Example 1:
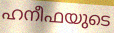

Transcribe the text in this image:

ഹനീഫയുടെ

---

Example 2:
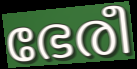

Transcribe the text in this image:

ഭേരീ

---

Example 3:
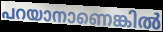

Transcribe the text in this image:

പറയാനാണെങ്കിൽ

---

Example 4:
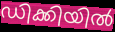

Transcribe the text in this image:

ഡിക്കിയിൽ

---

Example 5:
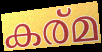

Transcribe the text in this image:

കര്മ